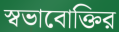
স্বভাবোক্তির